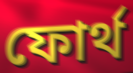
ফোর্থ